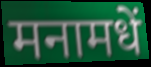
मनामधें